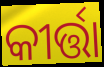
କୀର୍ତ୍ତା